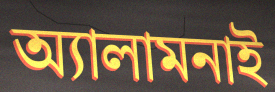
অ্যালামনাই